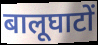
बालूघाटों